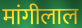
मांगीलाल